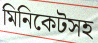
মিনিকেটসহ